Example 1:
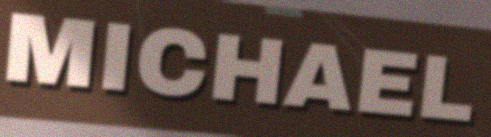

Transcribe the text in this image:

MICHAEL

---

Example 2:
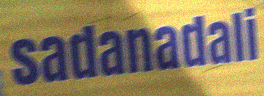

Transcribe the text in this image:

sadanadali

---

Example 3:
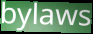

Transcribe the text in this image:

bylaws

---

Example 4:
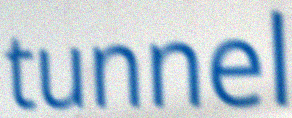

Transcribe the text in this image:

tunnel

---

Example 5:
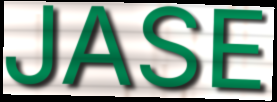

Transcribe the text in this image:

JASE